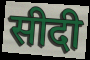
सीदी